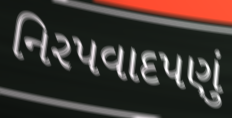
નિરપવાદપણું